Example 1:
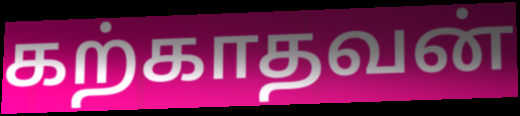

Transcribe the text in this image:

கற்காதவன்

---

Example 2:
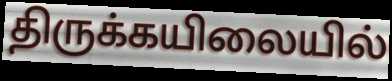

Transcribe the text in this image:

திருக்கயிலையில்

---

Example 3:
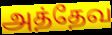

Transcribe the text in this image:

அத்தேவ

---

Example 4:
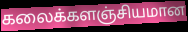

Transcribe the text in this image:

கலைக்களஞ்சியமான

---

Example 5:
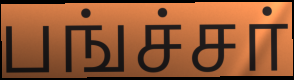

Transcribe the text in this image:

பங்ச்சர்